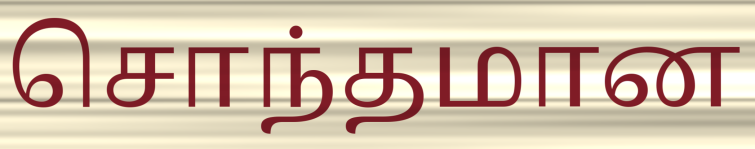
சொந்தமான